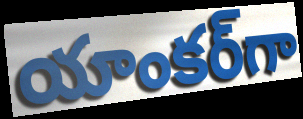
యాంకర్‌గా